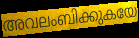
അവലംബിക്കുകയേ